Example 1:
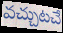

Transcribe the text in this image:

వచ్చుటచే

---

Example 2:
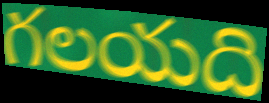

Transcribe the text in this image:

గలయది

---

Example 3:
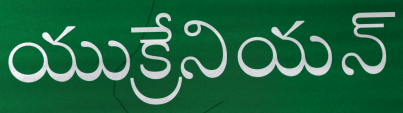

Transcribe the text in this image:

యుక్రేనియన్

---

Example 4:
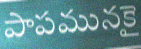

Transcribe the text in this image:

పాపమునకై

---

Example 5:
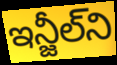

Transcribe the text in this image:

ఇన్జీల్‌ని